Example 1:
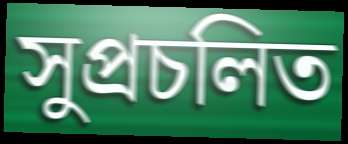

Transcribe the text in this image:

সুপ্রচলিত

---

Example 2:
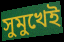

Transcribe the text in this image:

সুমুখেই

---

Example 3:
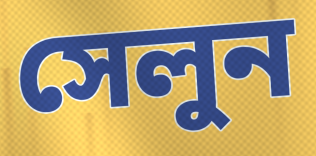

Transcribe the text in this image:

সেলুন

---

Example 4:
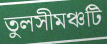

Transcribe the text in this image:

তুলসীমঞ্চটি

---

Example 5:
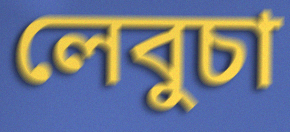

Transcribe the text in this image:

লেবুচা